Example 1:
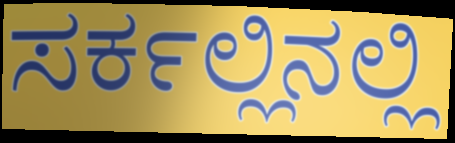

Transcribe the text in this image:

ಸರ್ಕಲ್ಲಿನಲ್ಲಿ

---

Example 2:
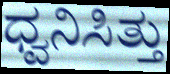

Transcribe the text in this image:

ಧ್ವನಿಸಿತ್ತು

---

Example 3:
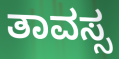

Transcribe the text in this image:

ತಾವಸ್ಸ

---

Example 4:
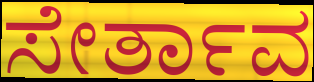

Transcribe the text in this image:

ಸೇರ್ತಾವ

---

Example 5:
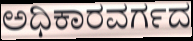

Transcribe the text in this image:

ಅಧಿಕಾರವರ್ಗದ